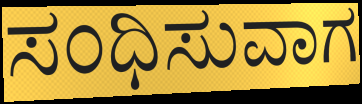
ಸಂಧಿಸುವಾಗ